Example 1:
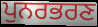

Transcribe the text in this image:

ਪੁਨਰਭਰਣ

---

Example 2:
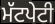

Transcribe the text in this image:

ਮੱਟਪੇਟੀ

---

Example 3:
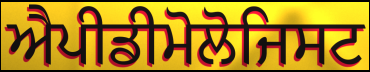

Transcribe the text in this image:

ਐਪੀਡੀਮੋਲੋਜਿਸਟ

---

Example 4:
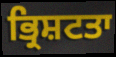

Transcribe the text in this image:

ਭ੍ਰਿਸ਼ਟਤਾ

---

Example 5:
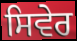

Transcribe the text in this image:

ਸਿਵੇਰ